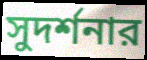
সুদর্শনার